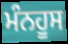
ਮੰਨਹੂਸ